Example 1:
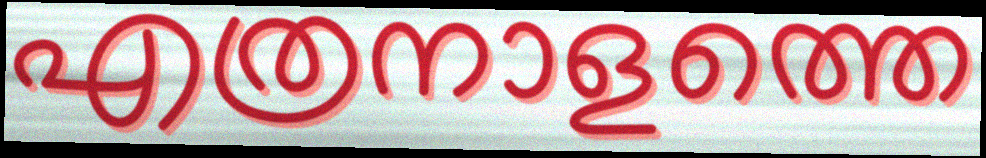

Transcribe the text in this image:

എത്രനാളത്തെ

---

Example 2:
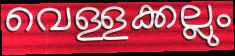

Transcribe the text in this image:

വെള്ളക്കല്ലും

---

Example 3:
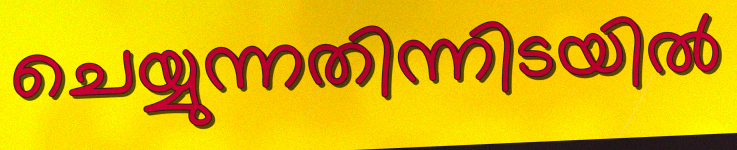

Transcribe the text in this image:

ചെയ്യുന്നതിന്നിടയിൽ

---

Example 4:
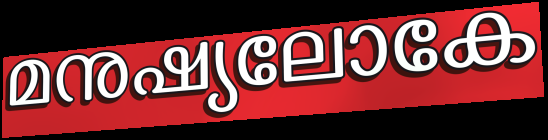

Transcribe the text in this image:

മനുഷ്യലോകേ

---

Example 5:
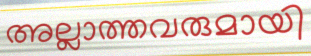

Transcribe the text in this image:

അല്ലാത്തവരുമായി